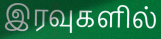
இரவுகளில்